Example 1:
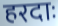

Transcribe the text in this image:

हरदाः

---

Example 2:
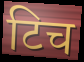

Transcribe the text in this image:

टिच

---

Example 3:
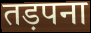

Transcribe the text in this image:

तड़पना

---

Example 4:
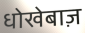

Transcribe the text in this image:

धोखेबाज़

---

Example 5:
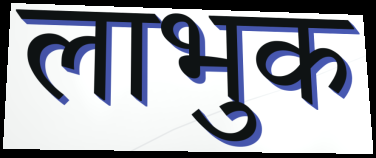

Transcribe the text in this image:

लाभुक